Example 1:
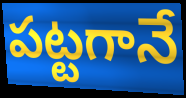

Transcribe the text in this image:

పట్టగానే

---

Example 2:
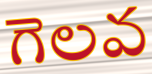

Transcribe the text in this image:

గెలవ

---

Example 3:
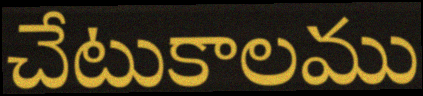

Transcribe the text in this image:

చేటుకాలము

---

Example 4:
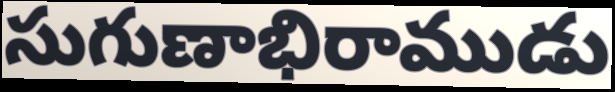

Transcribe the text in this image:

సుగుణాభిరాముడు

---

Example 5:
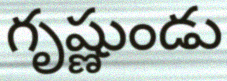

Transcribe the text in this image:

గృష్ణుండు